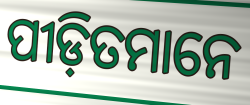
ପୀଡ଼ିତମାନେ